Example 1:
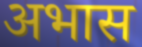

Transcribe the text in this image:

अभास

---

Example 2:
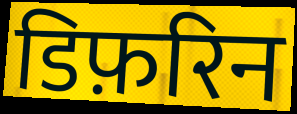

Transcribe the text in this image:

डिफ़रिन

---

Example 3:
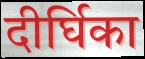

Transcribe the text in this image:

दीर्घिका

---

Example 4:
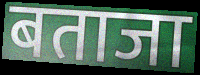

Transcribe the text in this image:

बताजा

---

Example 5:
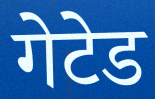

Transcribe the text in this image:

गेटेड